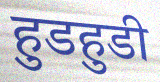
हुडहुडी